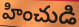
హించుడి